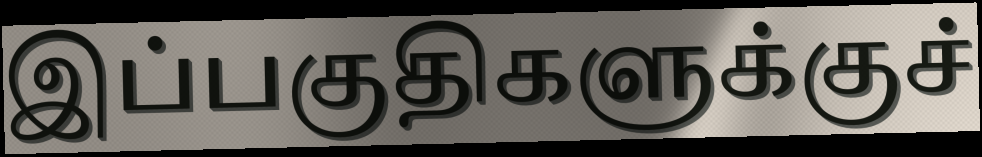
இப்பகுதிகளுக்குச்